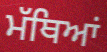
ਮੱਥਿਆਂ